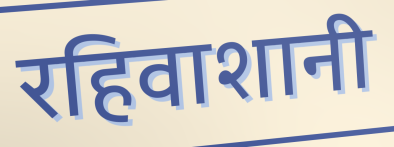
रहिवाशानी